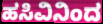
ಹಸಿವಿನಿಂದ